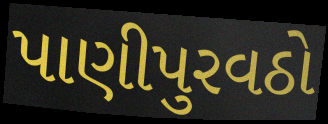
પાણીપુરવઠો